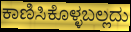
ಕಾಣಿಸಿಕೊಳ್ಳಬಲ್ಲದು